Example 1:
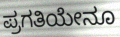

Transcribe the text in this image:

ಪ್ರಗತಿಯೇನೂ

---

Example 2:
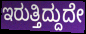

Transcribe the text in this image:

ಇರುತ್ತಿದ್ದುದೇ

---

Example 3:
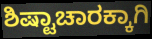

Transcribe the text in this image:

ಶಿಷ್ಟಾಚಾರಕ್ಕಾಗಿ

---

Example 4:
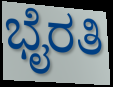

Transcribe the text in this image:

ಭೈರತಿ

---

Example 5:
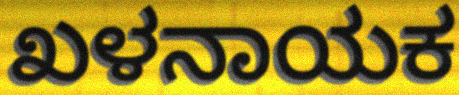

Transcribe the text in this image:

ಖಳನಾಯಕ